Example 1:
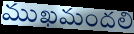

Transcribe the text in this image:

ముఖమందలి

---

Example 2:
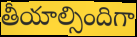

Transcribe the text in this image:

తీయాల్సిందిగా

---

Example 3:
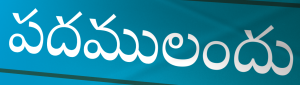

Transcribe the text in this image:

పదములందు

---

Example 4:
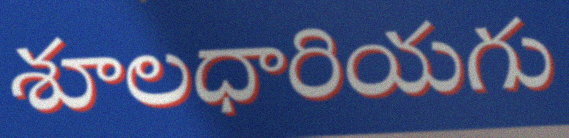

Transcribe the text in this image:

శూలధారియగు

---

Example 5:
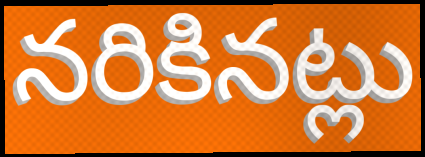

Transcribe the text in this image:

నరికినట్లు